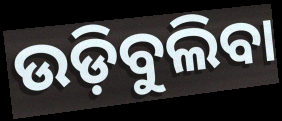
ଉଡ଼ିବୁଲିବା